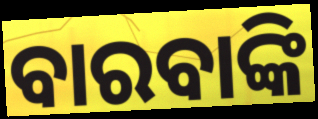
ବାରବାଙ୍କି